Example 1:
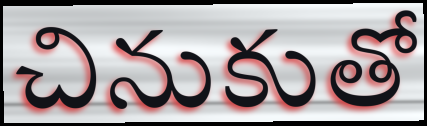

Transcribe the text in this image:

చినుకుతో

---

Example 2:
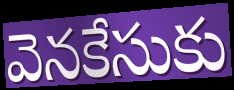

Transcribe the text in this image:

వెనకేసుకు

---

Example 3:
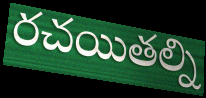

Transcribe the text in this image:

రచయితల్ని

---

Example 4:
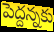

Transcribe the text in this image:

పెద్దన్నకు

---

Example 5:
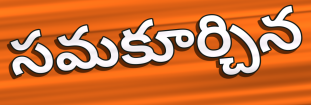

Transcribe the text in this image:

సమకూర్చిన